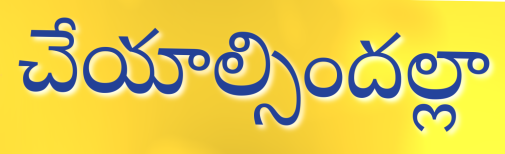
చేయాల్సిందల్లా